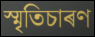
স্মৃতিচাৰণ